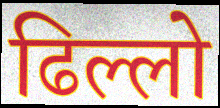
ढिल्लो